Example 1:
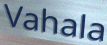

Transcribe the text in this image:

Vahala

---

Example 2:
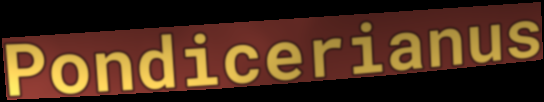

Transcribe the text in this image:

Pondicerianus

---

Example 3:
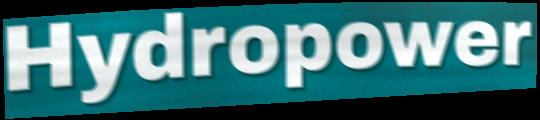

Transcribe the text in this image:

Hydropower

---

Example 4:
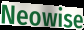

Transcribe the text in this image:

Neowise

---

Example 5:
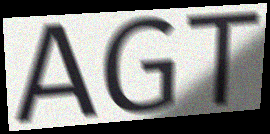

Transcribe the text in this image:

AGT